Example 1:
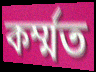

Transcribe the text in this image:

কৰ্ম্মত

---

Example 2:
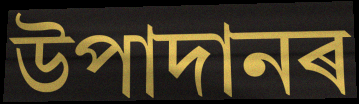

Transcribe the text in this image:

উপাদানৰ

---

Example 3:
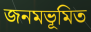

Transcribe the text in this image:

জনমভূমিত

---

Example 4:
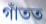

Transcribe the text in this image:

গাঁতত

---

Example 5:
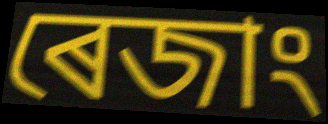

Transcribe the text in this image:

ৰেজাং